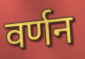
वर्णन